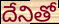
దేనితో